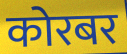
कोरबर